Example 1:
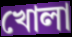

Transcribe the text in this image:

খোলা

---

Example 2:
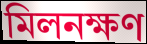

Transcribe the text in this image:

মিলনক্ষণ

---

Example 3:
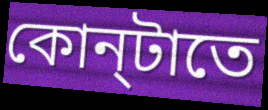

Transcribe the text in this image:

কোন্‌টাতে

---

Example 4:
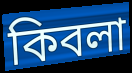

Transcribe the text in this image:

কিবলা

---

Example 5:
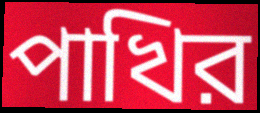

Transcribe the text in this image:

পাখির